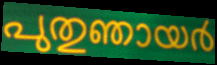
പുതുഞായർ